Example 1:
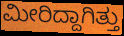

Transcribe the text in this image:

ಮೀರಿದ್ದಾಗಿತ್ತು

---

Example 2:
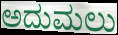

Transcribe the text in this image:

ಅದುಮಲು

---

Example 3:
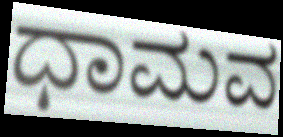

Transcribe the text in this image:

ಧಾಮವ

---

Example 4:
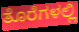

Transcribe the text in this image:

ತೊರೆಗಳಲ್ಲಿ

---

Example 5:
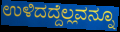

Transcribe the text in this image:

ಉಳಿದದ್ದೆಲ್ಲವನ್ನೂ